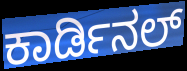
ಕಾರ್ಡಿನಲ್